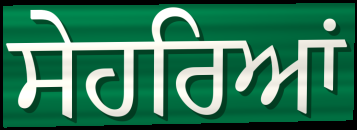
ਸੇਹਰਿਆਂ